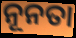
ନୂନତା